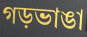
গড়ভাঙা